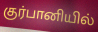
குர்பானியில்